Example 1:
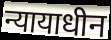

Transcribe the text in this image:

न्यायाधीन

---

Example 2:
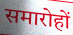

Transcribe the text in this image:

समारोहों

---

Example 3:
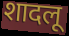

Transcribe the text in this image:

शादलू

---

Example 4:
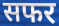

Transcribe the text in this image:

सफर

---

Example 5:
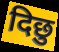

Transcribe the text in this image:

दिछु